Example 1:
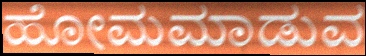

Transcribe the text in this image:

ಹೋಮಮಾಡುವ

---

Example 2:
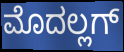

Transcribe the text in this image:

ಮೊದಲ್ಲಗ್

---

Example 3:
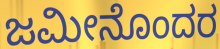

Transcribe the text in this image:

ಜಮೀನೊಂದರ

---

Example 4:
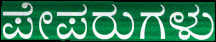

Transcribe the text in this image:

ಪೇಪರುಗಳು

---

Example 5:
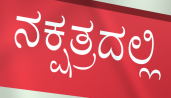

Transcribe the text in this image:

ನಕ್ಷತ್ರದಲ್ಲಿ